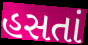
હસતાં